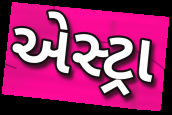
એસ્ટ્રા